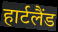
हार्टलैंड